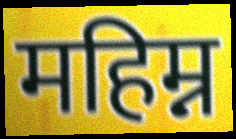
महिम्न